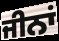
ਜੀਨਾਂ